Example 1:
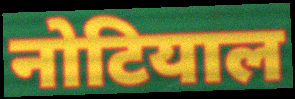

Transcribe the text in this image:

नोटियाल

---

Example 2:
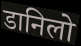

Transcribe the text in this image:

डानिलो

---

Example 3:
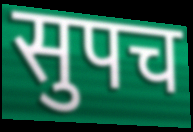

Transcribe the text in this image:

सुपच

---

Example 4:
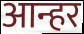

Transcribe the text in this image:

आन्हर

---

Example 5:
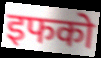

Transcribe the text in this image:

इफको